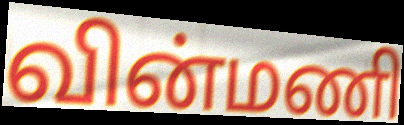
வின்மணி